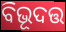
ବିଭୂଦତ୍ତ